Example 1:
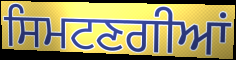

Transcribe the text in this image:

ਸਿਮਟਣਗੀਆਂ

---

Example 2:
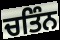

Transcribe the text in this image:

ਚਤਿੰਨ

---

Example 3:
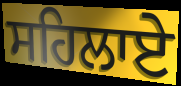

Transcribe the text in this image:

ਸਹਿਲਾਏ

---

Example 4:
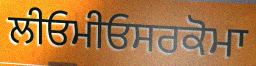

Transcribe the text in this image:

ਲੀਓਮੀਓਸਰਕੋਮਾ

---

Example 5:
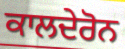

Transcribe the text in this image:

ਕਾਲਦੇਰੋਨ